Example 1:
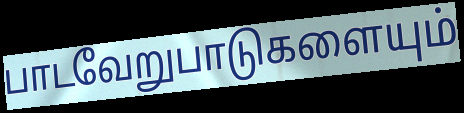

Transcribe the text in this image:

பாடவேறுபாடுகளையும்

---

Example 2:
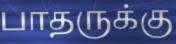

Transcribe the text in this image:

பாதருக்கு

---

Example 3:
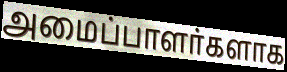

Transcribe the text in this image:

அமைப்பாளர்களாக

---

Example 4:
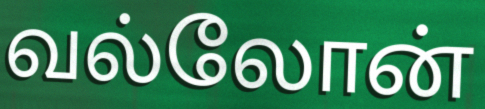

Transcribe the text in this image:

வல்லோன்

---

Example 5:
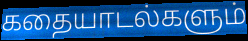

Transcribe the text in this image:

கதையாடல்களும்